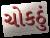
ચોકઠું